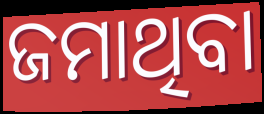
ଜମାଥିବା